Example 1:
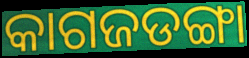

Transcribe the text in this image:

କାଗଜଡଙ୍ଗା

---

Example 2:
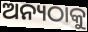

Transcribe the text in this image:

ଅନ୍ୟଠାକୁ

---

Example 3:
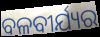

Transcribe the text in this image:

ବଳବୀର୍ଯ୍ୟର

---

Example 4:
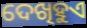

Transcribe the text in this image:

ଦେଖିହୁଏ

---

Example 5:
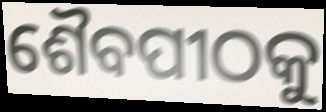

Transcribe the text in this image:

ଶୈବପୀଠକୁ